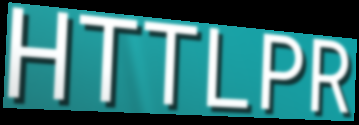
HTTLPR